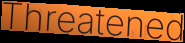
Threatened